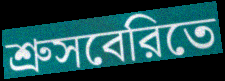
শ্রুসবেরিতে